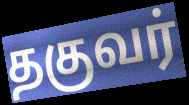
தகுவர்